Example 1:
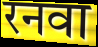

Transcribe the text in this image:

रनवा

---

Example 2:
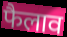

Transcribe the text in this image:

फैलाव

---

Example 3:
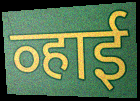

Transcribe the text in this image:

व्हाई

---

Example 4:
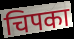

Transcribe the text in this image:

चिपका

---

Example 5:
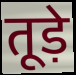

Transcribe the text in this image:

तूड़े